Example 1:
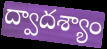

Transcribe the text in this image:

ద్వాదశ్యాం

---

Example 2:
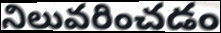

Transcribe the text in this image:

నిలువరించడం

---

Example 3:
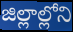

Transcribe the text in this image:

జిల్లాల్లోని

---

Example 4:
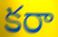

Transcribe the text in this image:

కరా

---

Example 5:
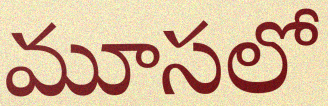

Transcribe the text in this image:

మూసలో